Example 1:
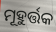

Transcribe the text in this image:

ମୂହୁର୍ତ୍ତକ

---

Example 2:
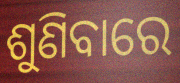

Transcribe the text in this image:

ଶୁଣିବାରେ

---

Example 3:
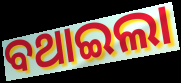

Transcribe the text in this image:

ବଥାଇଲା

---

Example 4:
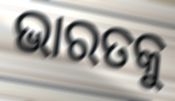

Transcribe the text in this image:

ଭାରତକୁ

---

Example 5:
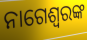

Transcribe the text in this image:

ନାଗେଶ୍ୱରଙ୍କ